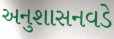
અનુશાસનવડે